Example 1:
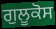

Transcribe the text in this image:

ਗੁਲੂਕੋਸ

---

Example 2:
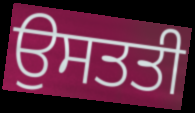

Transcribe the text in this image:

ਉਸਤਤੀ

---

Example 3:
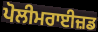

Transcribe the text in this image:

ਪੋਲੀਮਰਾਈਜ਼ਡ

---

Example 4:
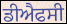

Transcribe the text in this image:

ਡੀਐਫਸੀ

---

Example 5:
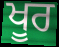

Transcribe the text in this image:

ਖੂਰ